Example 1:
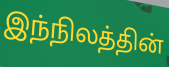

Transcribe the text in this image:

இந்நிலத்தின்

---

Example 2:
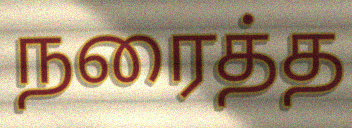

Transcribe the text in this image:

நரைத்த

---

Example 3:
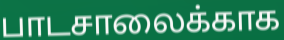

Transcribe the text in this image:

பாடசாலைக்காக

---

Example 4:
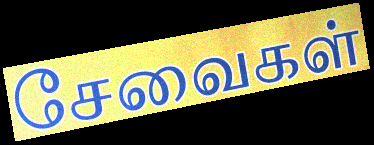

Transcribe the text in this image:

சேவைகள்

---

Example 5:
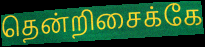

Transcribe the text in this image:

தென்றிசைக்கே